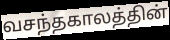
வசந்தகாலத்தின்